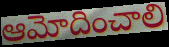
ఆమోదించాలి